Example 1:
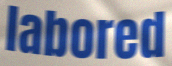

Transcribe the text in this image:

labored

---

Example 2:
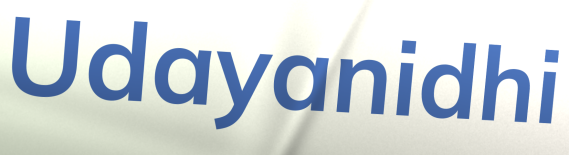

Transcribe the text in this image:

Udayanidhi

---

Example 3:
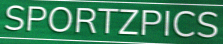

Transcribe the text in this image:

SPORTZPICS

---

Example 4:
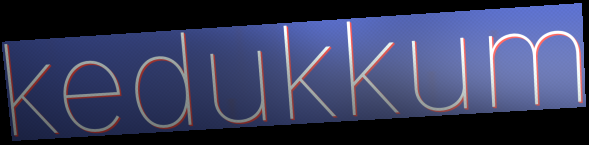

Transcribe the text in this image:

kedukkum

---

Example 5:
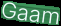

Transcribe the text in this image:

Gaam